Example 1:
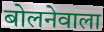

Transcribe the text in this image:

बोलनेवाला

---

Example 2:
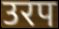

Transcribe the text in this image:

उरप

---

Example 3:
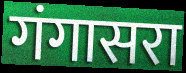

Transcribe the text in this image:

गंगासरा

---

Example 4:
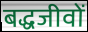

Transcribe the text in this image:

बद्धजीवों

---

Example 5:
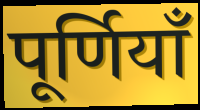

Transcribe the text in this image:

पूर्णियाँ